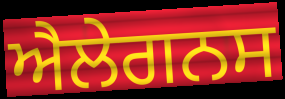
ਐਲੇਗਨਸ